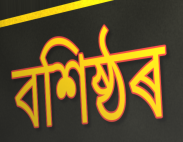
বশিষ্ঠৰ